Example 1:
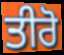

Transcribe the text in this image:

ਤੀਰੋ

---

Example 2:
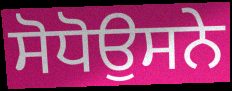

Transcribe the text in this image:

ਸੋਧੋਉਸਨੇ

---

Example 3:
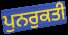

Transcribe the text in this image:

ਪੁਨਰੁਕਤੀ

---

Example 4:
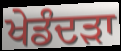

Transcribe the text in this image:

ਖੇਡੰਦੜਾ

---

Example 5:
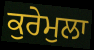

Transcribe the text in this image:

ਕੁਰੇਮੁਲਾ